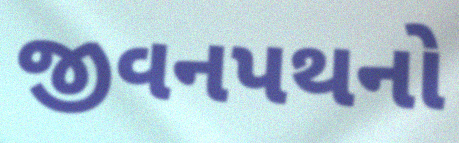
જીવનપથનો